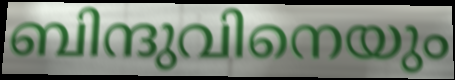
ബിന്ദുവിനെയും